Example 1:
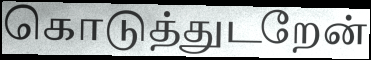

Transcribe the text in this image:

கொடுத்துடறேன்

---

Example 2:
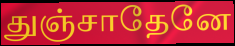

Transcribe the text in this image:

துஞ்சாதேனே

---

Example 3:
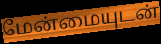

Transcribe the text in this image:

மேன்மையுடன்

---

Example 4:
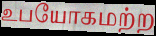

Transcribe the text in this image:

உபயோகமற்ற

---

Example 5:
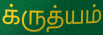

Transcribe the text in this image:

க்ருத்யம்